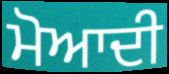
ਮੋਆਦੀ